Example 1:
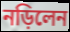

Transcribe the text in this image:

নড়িলেন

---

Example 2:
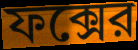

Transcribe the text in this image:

ফক্সের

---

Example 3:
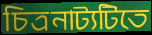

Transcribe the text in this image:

চিত্রনাট্যটিতে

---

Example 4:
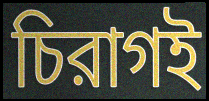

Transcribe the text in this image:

চিরাগই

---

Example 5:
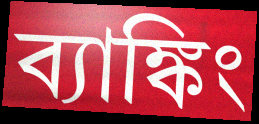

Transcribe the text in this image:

ব্যাঙ্কিং